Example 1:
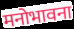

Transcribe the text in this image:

मनोभावना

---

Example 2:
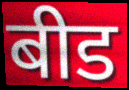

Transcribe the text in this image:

बीड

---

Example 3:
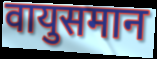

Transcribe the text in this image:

वायुसमान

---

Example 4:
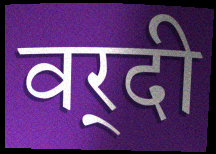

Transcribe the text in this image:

वर्दी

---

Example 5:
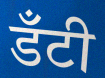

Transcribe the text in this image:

डँटी